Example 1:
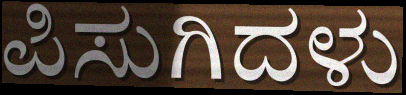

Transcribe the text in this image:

ಪಿಸುಗಿದಳು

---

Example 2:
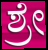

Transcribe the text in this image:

ಶ್ರೇ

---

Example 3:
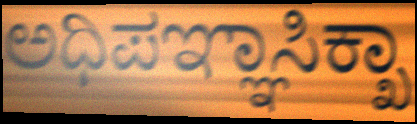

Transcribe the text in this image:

ಅಧಿಪಞ್ಞಾಸಿಕ್ಖಾ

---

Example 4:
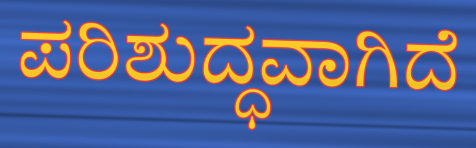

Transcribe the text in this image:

ಪರಿಶುದ್ಧವಾಗಿದೆ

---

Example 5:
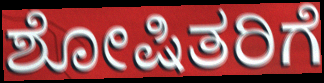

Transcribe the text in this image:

ಶೋಷಿತರಿಗೆ